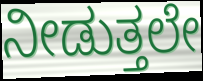
ನೀಡುತ್ತಲೇ